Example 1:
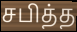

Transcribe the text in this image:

சபித்த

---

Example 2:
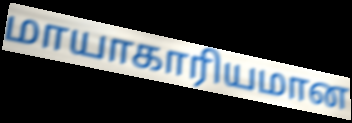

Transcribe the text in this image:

மாயாகாரியமான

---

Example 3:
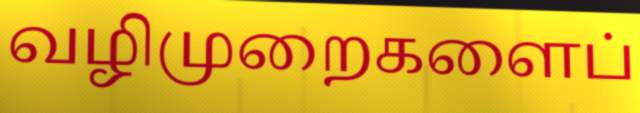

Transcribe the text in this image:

வழிமுறைகளைப்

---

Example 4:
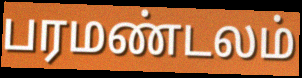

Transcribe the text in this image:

பரமண்டலம்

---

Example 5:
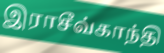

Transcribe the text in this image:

இராசீவ்காந்தி